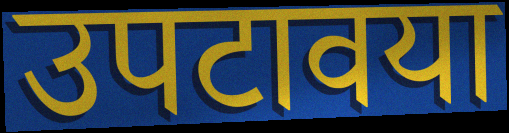
उपटावया